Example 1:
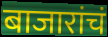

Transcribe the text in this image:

बाजारांचं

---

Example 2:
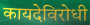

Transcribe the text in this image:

कायदेविरोधी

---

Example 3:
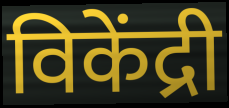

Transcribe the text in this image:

विकेंद्री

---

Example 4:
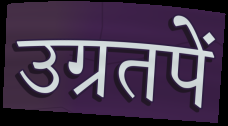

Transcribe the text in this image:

उग्रतपें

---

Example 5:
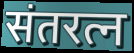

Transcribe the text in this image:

संतरत्न